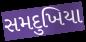
સમદુખિયા